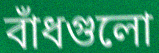
বাঁধগুলো